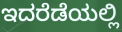
ಇದರೆಡೆಯಲ್ಲಿ